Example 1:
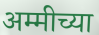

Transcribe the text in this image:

अम्मीच्या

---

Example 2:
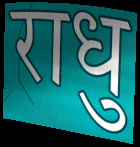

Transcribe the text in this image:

राधु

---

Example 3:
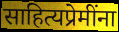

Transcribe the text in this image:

साहित्यप्रेमींना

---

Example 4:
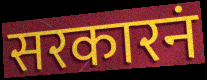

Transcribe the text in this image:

सरकारनं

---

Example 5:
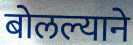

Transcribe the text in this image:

बोलल्याने